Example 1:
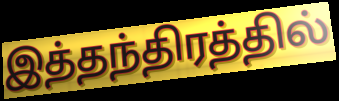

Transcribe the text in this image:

இத்தந்திரத்தில்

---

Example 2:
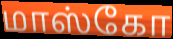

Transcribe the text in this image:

மாஸ்கோ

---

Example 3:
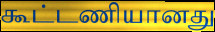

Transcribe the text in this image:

கூட்டணியானது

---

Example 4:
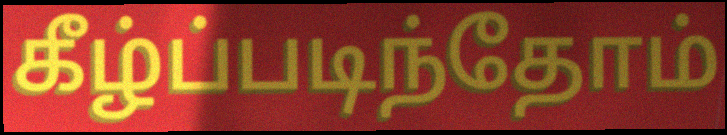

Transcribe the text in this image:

கீழ்ப்படிந்தோம்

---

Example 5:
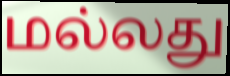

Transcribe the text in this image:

மல்லது